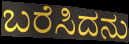
ಬರೆಸಿದನು